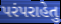
પરંપરાહેતુ